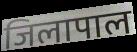
जिलापाल